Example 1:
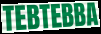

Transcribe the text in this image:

TEBTEBBA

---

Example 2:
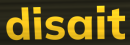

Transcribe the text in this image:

disait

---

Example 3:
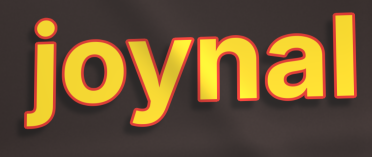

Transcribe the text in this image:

joynal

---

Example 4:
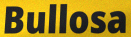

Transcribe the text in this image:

Bullosa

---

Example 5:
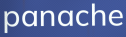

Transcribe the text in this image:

panache